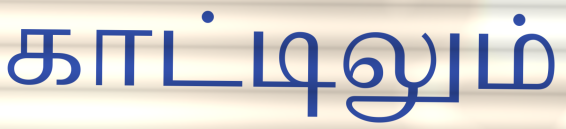
காட்டிலும்